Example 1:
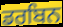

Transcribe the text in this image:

ਡਰਬਿਨ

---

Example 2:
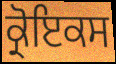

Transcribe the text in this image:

ਕ੍ਰੋਇਕਸ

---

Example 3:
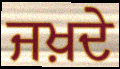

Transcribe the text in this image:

ਜਖ਼ਦੇ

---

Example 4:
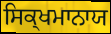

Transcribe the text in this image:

ਸਿਕ੍ਖਮਾਨਾਯ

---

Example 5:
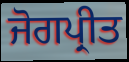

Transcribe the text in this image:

ਜੋਗਪ੍ਰੀਤ